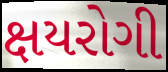
ક્ષયરોગી